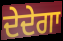
ਦੇਦੇਗਾ